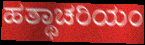
ಹತ್ಥಾಚರಿಯಂ